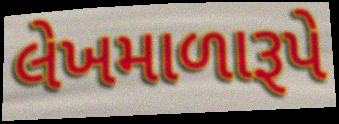
લેખમાળારૂપે